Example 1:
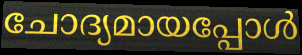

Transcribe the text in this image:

ചോദ്യമായപ്പോൾ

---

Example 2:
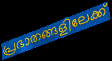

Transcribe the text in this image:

പ്രഭാതങ്ങളിലേക്ക്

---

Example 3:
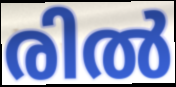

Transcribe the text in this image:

രിൽ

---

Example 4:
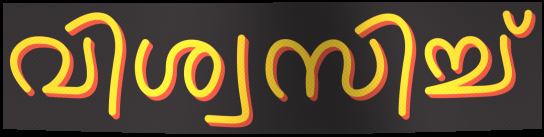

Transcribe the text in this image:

വിശ്വസിച്ച്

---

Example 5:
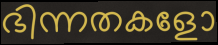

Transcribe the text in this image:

ഭിന്നതകളോ